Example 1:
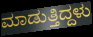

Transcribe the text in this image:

ಮಾಡುತ್ತಿದ್ದಳು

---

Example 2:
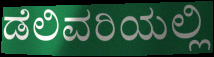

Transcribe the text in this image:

ಡೆಲಿವರಿಯಲ್ಲಿ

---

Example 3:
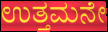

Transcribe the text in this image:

ಉತ್ತಮನೇ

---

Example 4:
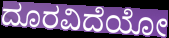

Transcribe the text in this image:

ದೂರವಿದೆಯೋ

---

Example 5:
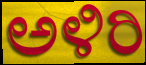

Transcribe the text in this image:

ಅಳಿರಿ